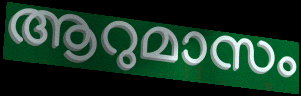
ആറുമാസം